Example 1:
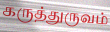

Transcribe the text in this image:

கருத்துருவம்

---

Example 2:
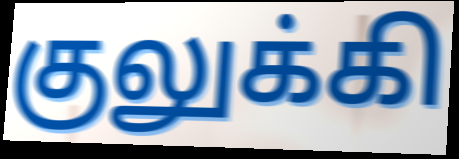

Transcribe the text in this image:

குலுக்கி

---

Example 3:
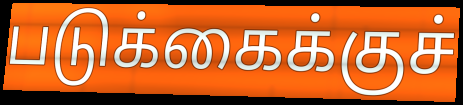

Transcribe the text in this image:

படுக்கைக்குச்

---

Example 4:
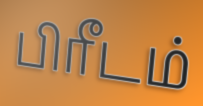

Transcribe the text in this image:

பிரீடம்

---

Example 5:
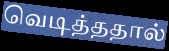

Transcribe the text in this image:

வெடித்ததால்